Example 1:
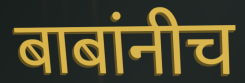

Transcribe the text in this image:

बाबांनीच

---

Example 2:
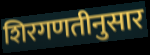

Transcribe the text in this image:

शिरगणतीनुसार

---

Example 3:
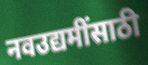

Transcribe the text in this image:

नवउद्यमींसाठी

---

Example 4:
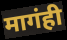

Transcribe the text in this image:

मागंही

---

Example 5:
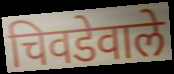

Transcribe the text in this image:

चिवडेवाले